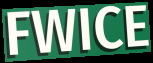
FWICE